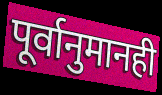
पूर्वानुमानही